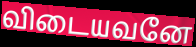
விடையவனே